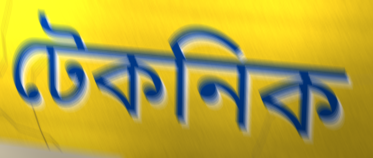
টেকনিক